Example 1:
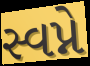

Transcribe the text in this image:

સ્વપ્ને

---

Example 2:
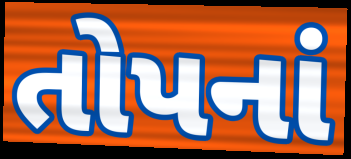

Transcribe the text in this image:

તોપનાં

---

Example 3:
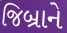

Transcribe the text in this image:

જિબ્રાને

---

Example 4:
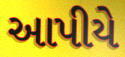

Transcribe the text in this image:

આપીયે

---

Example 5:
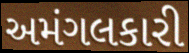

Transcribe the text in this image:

અમંગલકારી